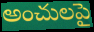
అంచులపై